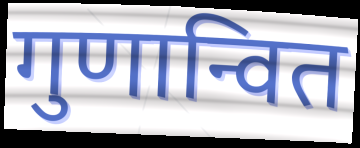
गुणान्वित